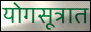
योगसूत्रात